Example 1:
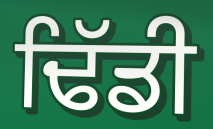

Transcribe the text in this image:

ਢਿੱਡੀ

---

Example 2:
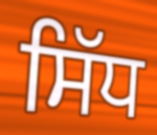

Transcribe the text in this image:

ਸਿੱਧ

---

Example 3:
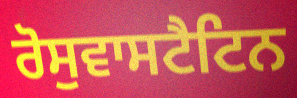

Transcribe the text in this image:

ਰੋਸੁਵਾਸਟੈਟਿਨ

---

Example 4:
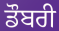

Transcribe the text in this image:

ਡੌਬਰੀ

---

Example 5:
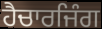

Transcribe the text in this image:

ਹੈਚਾਰਜਿੰਗ